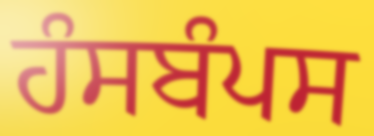
ਹੰਸਬੰਪਸ